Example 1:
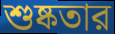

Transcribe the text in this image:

শুষ্কতার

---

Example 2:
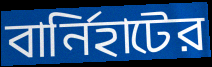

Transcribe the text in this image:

বার্নিহাটের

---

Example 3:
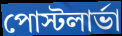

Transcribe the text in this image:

পোস্টলার্ভা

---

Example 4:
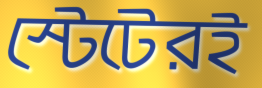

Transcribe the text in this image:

স্টেটেরই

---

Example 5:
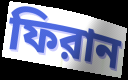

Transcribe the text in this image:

ফিরান